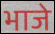
भाजे